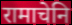
रामाचेनि